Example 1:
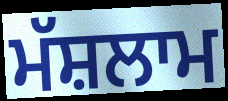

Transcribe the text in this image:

ਮੱਸ਼ਲਾਮ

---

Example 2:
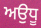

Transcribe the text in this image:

ਅਉਧੂ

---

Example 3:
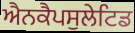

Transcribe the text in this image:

ਐਨਕੈਪਸੁਲੇਟਿਡ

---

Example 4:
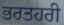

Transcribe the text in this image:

ਭਰਤਹਰੀ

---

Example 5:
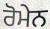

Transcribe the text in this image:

ਰੋਮੇਨ